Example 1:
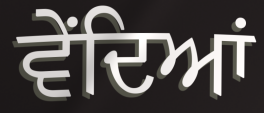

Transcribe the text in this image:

ਵੇਂਦਿਆਂ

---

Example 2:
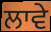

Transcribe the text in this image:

ਲਾਵੇ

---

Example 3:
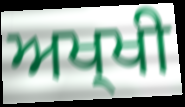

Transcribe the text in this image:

ਅਖ੍ਖੀ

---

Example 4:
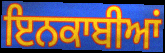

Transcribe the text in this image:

ਇਨਕਾਬੀਆਂ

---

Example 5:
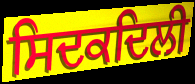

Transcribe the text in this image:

ਸਿਦਕਦਿਲੀ